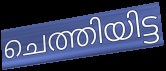
ചെത്തിയിട്ട